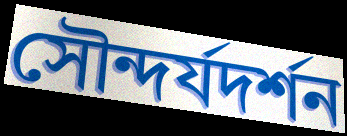
সৌন্দর্যদর্শন